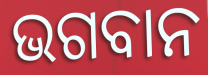
ଭଗବାନ